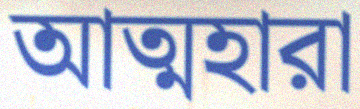
আত্মহারা